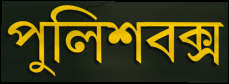
পুলিশবক্স